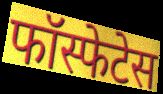
फॉस्फेटेस